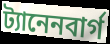
ট্যানেনবার্গ